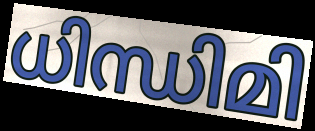
ധിന്ധിമി